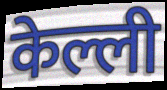
केल्ली